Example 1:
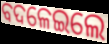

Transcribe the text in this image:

ବଦଳେଇଲେ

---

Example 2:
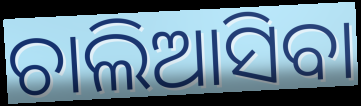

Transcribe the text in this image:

ଚାଲିଆସିବା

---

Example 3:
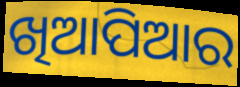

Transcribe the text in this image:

ଖିଆପିଆର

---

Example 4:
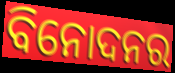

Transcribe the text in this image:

ବିନୋଦନର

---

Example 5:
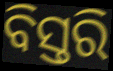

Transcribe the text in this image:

ବିସ୍ତରି